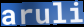
aruli